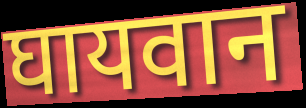
घायवान